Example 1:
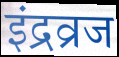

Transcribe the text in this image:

इंद्रव्रज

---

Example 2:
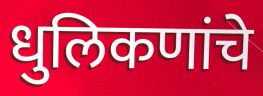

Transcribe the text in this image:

धुलिकणांचे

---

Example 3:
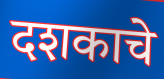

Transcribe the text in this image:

दशकाचे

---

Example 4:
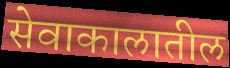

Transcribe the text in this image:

सेवाकालातील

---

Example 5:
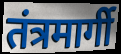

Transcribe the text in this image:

तंत्रमार्गी